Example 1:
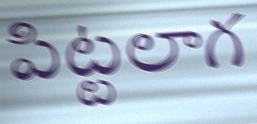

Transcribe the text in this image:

పిట్టలాగ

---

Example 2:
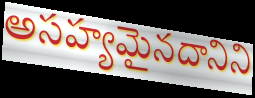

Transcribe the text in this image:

అసహ్యమైనదానిని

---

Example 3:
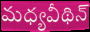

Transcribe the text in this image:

మధ్యవీథిన్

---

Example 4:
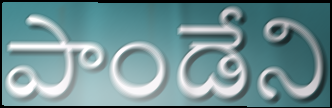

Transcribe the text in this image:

పాండేని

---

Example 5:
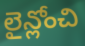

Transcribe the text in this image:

లైన్లోంచి